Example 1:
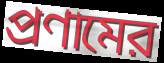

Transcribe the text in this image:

প্রণামের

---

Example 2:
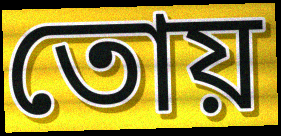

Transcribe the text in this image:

তোয়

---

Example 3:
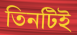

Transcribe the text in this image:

তিনটিই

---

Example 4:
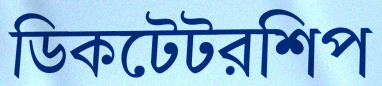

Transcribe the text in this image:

ডিকটেটরশিপ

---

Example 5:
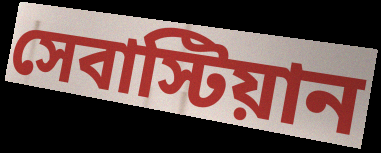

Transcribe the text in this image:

সেবাস্টিয়ান